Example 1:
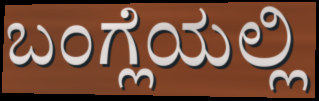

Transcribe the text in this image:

ಬಂಗ್ಲೆಯಲ್ಲಿ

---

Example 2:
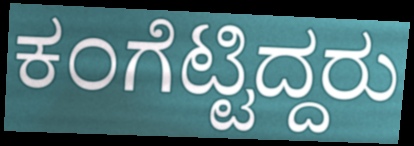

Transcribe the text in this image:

ಕಂಗೆಟ್ಟಿದ್ದರು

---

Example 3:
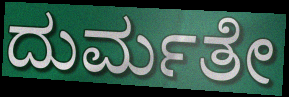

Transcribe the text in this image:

ದುರ್ಮತೇ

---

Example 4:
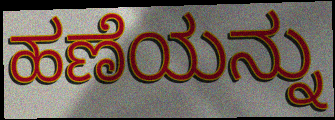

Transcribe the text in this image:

ಹಣೆಯನ್ನು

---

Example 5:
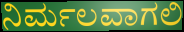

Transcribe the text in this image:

ನಿರ್ಮಲವಾಗಲಿ